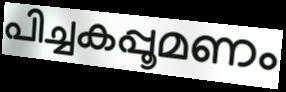
പിച്ചകപ്പൂമണം